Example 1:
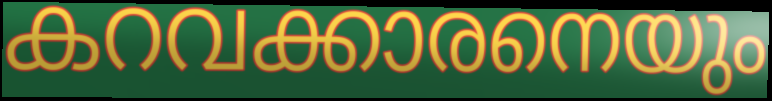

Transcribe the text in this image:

കറവക്കാരനെയും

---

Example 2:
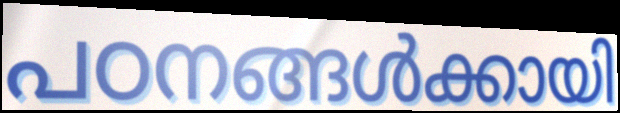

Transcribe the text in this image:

പഠനങ്ങൾക്കായി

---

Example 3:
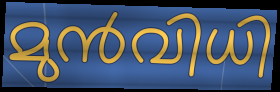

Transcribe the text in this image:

മുൻവിധി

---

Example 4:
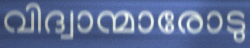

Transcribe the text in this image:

വിദ്വാന്മാരോടു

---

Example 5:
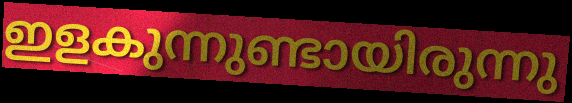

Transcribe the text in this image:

ഇളകുന്നുണ്ടായിരുന്നു